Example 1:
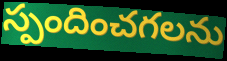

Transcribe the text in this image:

స్పందించగలను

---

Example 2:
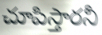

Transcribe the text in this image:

చూపిస్తారనీ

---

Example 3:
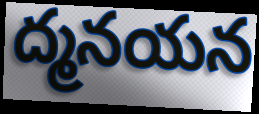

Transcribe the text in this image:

ద్మనయన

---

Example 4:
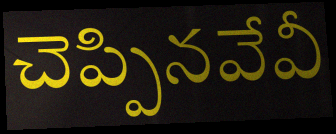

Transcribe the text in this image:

చెప్పినవేవీ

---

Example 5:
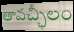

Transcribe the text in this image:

తావచ్ఛీలం